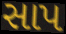
સાપ